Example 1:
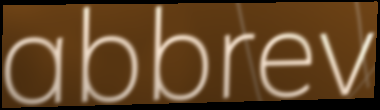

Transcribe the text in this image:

abbrev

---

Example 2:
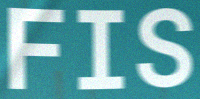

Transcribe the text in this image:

FIS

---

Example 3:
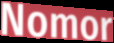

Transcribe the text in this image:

Nomor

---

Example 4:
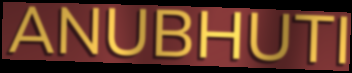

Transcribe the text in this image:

ANUBHUTI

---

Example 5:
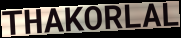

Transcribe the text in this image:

THAKORLAL